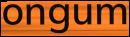
ongum